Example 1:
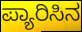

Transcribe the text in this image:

ಪ್ಯಾರಿಸಿನ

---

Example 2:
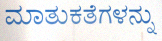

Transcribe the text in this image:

ಮಾತುಕತೆಗಳನ್ನು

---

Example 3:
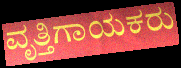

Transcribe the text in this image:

ವೃತ್ತಿಗಾಯಕರು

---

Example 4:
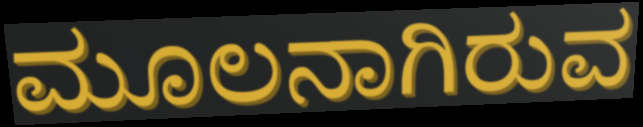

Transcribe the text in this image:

ಮೂಲನಾಗಿರುವ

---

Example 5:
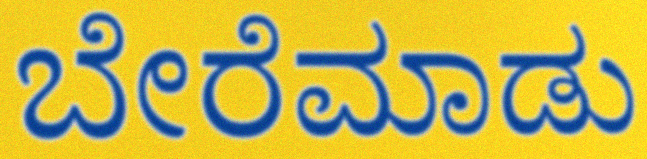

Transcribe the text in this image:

ಬೇರೆಮಾಡು